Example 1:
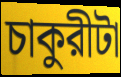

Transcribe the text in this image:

চাকুরীটা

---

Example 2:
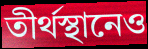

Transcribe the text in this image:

তীর্থস্থানেও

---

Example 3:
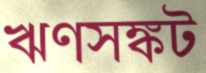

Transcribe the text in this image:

ঋণসঙ্কট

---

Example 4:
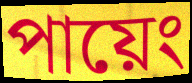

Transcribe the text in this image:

পায়েং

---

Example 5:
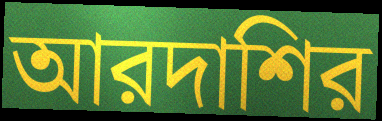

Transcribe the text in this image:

আরদাশির